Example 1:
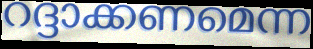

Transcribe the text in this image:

റദ്ദാക്കണമെന്ന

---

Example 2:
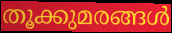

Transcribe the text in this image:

തൂക്കുമരങ്ങൾ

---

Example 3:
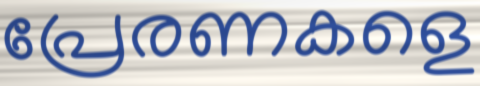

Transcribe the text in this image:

പ്രേരണകളെ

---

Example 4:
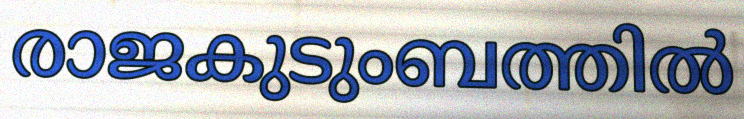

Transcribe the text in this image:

രാജകുടുംബത്തിൽ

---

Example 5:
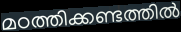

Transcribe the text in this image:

മഠത്തിക്കണ്ടത്തിൽ